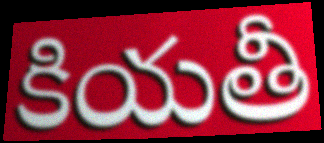
కియతీ